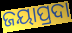
ଜୟାପ୍ରଦା